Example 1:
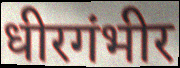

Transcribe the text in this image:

धीरगंभीर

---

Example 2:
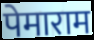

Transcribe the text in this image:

पेमाराम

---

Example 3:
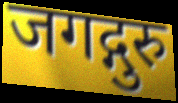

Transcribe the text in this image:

जगद्गुरु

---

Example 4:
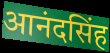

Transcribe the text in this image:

आनंदसिंह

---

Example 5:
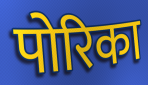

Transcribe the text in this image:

पोरिका